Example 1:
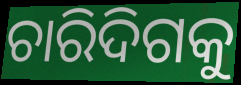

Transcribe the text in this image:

ଚାରିଦିଗକୁ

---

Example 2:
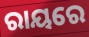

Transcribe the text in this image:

ରାୟରେ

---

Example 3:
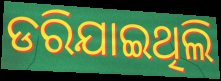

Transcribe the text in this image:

ଡରିଯାଇଥିଲି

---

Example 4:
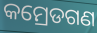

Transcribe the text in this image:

କମ୍ରେଡଗଣ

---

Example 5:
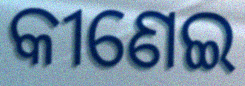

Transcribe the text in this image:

କୀଣେଇ